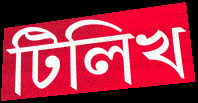
টিলিখ